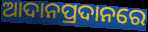
ଆଦାନପ୍ରଦାନରେ